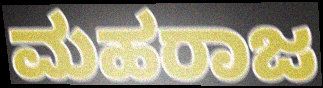
ಮಹರಾಜ